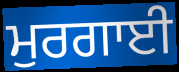
ਮੁਰਗਾਈ